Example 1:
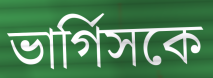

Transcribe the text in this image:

ভার্গিসকে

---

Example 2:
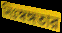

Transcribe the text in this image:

নিঃস্বঙ্গতার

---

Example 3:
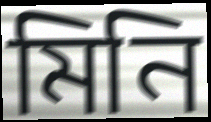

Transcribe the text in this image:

মিনি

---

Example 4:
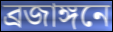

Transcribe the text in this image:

ব্রজাঙ্গনে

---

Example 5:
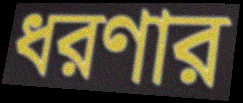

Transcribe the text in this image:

ধরণার